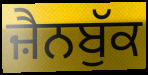
ਜ਼ੈਨਬੁੱਕ